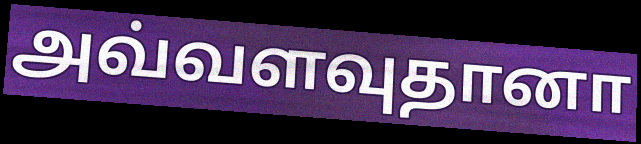
அவ்வளவுதானா